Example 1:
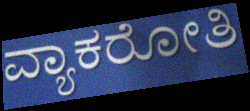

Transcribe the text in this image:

ವ್ಯಾಕರೋತಿ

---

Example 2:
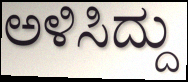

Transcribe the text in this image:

ಅಳಿಸಿದ್ದು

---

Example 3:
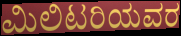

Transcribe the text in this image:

ಮಿಲಿಟರಿಯವರ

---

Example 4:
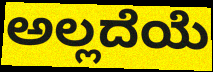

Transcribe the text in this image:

ಅಲ್ಲದೆಯೆ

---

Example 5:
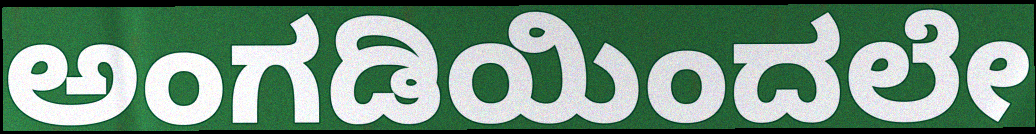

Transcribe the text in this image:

ಅಂಗಡಿಯಿಂದಲೇ